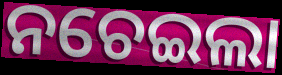
ନଚେଇଲା